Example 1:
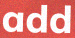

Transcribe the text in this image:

add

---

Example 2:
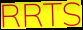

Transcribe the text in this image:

RRTS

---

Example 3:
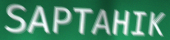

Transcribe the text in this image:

SAPTAHIK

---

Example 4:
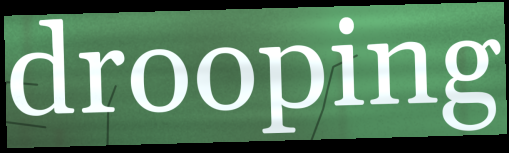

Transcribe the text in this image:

drooping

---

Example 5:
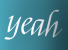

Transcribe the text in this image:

yeah